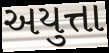
અયુત્તા